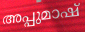
അപ്പുമാഷ്